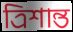
ত্রিশান্ত